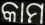
କାମ